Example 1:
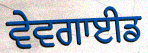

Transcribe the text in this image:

ਵੇਵਗਾਈਡ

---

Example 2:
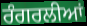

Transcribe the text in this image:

ਰੰਗਰਲੀਆਂ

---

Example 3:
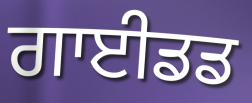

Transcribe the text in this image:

ਗਾਈਡਡ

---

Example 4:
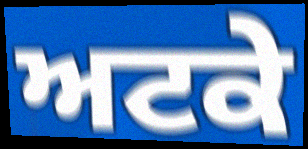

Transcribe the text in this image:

ਅਟਕੇ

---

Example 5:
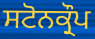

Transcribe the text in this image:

ਸਟੋਨਕ੍ਰੌਪ